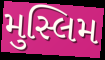
મુસ્લિમ